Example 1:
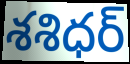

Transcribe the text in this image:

శశిధర్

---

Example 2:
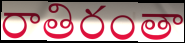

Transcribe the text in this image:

రాతిరంతా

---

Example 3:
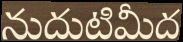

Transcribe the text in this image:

నుదుటిమీద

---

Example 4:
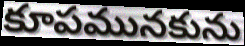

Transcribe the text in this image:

కూపమునకును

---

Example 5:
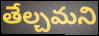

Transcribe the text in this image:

తేల్చమని